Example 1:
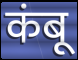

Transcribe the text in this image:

कंबू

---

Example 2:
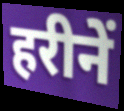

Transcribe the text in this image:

हरीनें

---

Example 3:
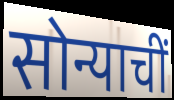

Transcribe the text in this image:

सोन्याचीं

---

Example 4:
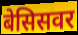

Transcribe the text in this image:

बेसिसवर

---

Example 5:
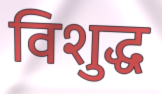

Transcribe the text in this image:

विशुद्ध